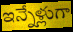
ఇన్నేళ్లుగా